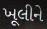
ખૂલીને